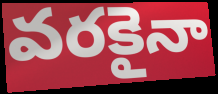
వరకైనా